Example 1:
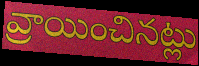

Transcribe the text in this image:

వ్రాయించినట్లు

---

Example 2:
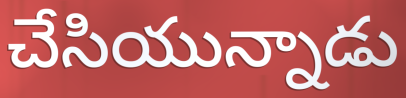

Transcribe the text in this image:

చేసియున్నాడు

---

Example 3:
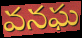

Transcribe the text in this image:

వనఘ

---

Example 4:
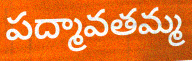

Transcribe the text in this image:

పద్మావతమ్మ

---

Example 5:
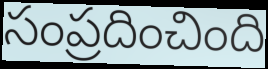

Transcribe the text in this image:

సంప్రదించింది